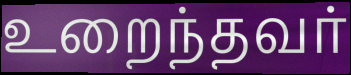
உறைந்தவர்